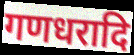
गणधरादि